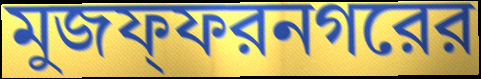
মুজফ্ফরনগরের